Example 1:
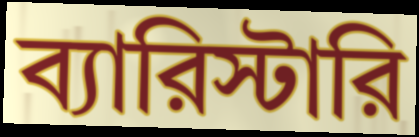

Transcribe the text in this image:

ব্যারিস্টারি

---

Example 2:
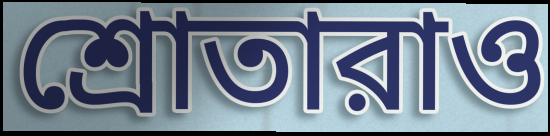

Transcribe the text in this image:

শ্রোতারাও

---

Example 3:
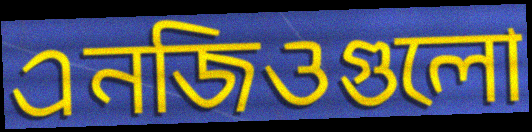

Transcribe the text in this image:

এনজিওগুলো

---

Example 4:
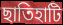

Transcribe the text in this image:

ছাতিহাটি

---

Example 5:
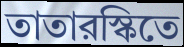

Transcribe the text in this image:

তাতারস্কিতে